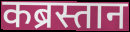
कब्रस्तान